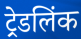
ट्रेडलिंक